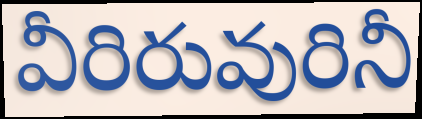
వీరిరువురినీ